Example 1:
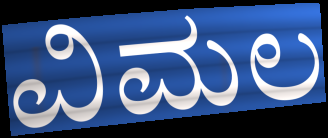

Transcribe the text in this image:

ವಿಮಲ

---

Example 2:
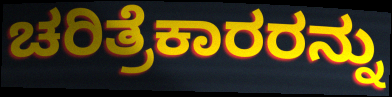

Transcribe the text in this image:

ಚರಿತ್ರೆಕಾರರನ್ನು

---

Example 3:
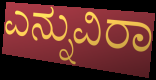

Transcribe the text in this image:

ಎನ್ನುವಿರಾ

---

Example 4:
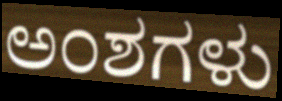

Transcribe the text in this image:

ಅಂಶಗಳು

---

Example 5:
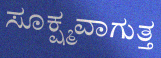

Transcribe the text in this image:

ಸೂಕ್ಷ್ಮವಾಗುತ್ತ